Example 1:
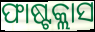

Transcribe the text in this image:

ଫାଷ୍ଟକ୍ଲାସ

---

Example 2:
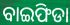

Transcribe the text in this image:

ବାଇଫିଡା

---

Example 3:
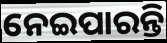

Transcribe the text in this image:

ନେଇପାରନ୍ତି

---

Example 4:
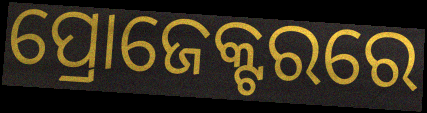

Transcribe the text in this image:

ପ୍ରୋଜେକ୍ଟରରେ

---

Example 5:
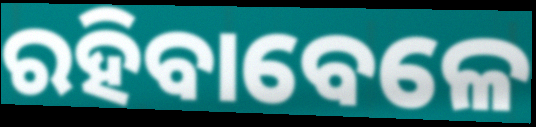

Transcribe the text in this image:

ରହିବାବେଳେ